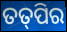
ତତ୍‌ପିର